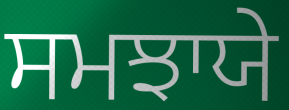
ਸਮਝਾਯੇ